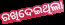
ରଖିଦେଇଥିଲା